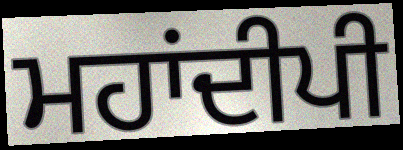
ਮਹਾਂਦੀਪੀ